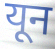
यून